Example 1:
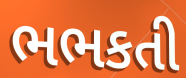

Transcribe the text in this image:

ભભકતી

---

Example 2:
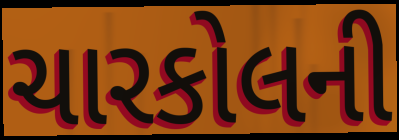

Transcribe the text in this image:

ચારકોલની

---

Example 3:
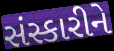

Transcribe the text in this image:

સંસ્કારીને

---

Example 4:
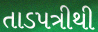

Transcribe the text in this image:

તાડપત્રીથી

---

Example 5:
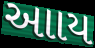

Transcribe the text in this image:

આાય